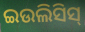
ଇଉଲିସିସ୍